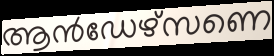
ആൻഡേഴ്സണെ